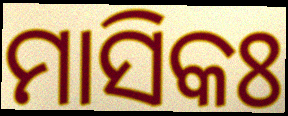
ମାସିକଃ